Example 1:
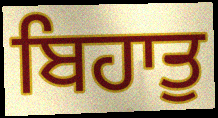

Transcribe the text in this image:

ਬਿਹਾਤੁ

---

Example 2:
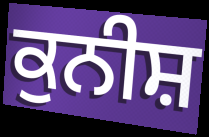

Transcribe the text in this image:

ਕੁਨੀਸ਼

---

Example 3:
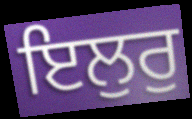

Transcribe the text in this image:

ਇਲੁਰੁ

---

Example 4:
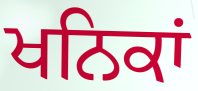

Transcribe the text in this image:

ਖਨਿਕਾਂ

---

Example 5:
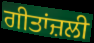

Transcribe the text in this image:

ਗੀਤਾਂਜ਼ਲੀ